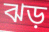
ঝড়